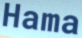
Hama